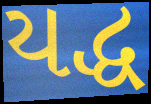
યદ્ધ